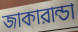
জাকারান্ডা